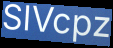
SIVcpz